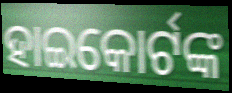
ହାଇକୋର୍ଟଙ୍କ